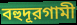
বহুদূরগামী